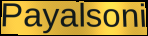
Payalsoni